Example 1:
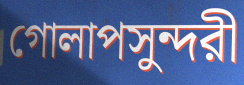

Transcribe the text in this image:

গোলাপসুন্দরী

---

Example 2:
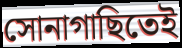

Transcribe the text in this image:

সোনাগাছিতেই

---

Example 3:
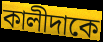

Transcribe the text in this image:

কালীদাকে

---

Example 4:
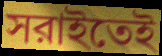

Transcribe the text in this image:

সরাইতেই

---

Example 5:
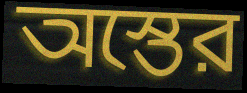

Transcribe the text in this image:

অস্তের